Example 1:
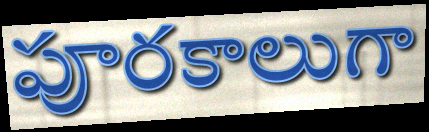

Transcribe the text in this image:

పూరకాలుగా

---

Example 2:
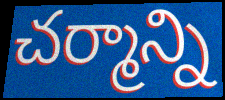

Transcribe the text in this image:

చర్మాన్ని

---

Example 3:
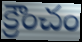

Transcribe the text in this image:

క్రౌంచం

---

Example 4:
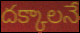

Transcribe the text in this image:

దక్కాలనే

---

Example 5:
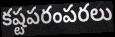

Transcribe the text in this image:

కష్టపరంపరలు